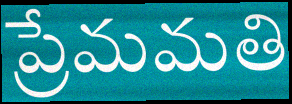
ప్రేమమతి